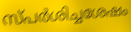
സ്പർശിച്ചശേഷം